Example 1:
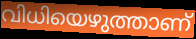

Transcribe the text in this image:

വിധിയെഴുത്താണ്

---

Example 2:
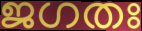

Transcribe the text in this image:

ജഗതഃ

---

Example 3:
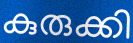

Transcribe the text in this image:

കുരുക്കി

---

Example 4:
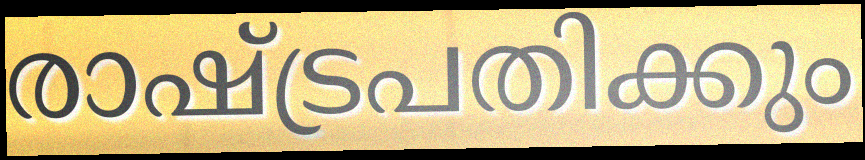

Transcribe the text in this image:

രാഷ്ട്രപതിക്കും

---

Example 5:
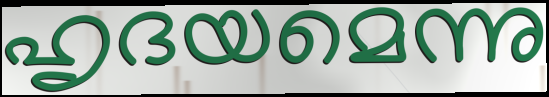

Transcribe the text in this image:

ഹൃദയമെന്നു